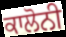
ਕਾਲੋਨੀ